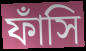
ফাঁসি